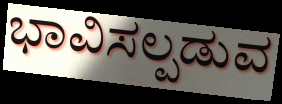
ಭಾವಿಸಲ್ಪಡುವ